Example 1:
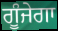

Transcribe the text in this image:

ਗੂੰਜੇਗਾ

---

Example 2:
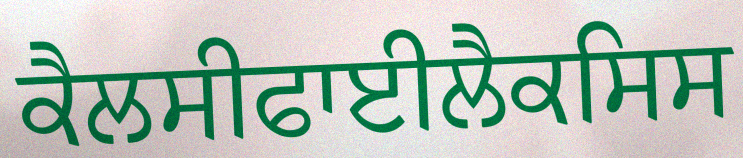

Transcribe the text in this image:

ਕੈਲਸੀਫਾਈਲੈਕਸਿਸ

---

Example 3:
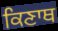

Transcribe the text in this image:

ਕਿਣਾਥ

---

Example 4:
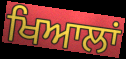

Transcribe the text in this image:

ਖਿਆਲਾਂ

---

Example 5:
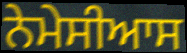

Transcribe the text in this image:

ਨੇਮੇਸੀਆਸ